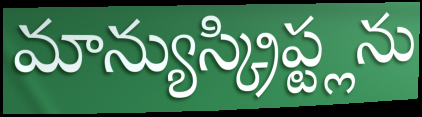
మాన్యుస్క్రిప్ట్లను